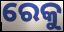
ରେକୁ